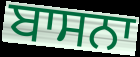
ਬਾਸਨਾ